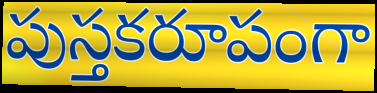
పుస్తకరూపంగా